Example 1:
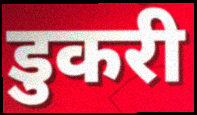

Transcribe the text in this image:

डुकरी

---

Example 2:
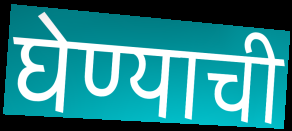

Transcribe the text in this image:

घेण्याची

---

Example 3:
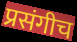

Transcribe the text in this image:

प्रसंगीच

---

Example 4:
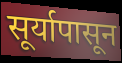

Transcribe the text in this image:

सूर्यापासून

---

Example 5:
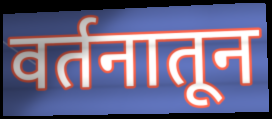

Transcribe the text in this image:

वर्तनातून